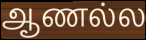
ஆணல்ல